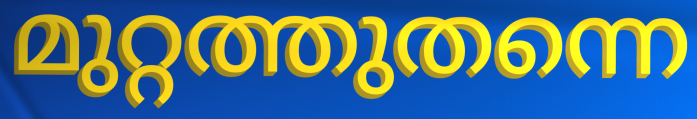
മുറ്റത്തുതന്നെ